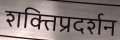
शक्तिप्रदर्शन